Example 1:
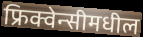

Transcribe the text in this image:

फ्रिक्वेन्सीमधील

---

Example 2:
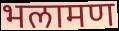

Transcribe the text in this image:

भलामण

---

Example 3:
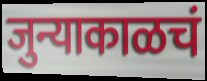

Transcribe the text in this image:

जुन्याकाळचं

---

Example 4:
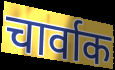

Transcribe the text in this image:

चार्वाक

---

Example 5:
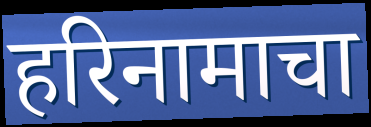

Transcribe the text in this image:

हरिनामाचा